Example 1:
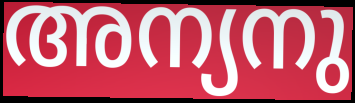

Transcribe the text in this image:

അന്യനു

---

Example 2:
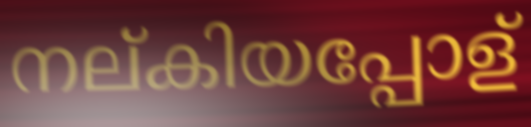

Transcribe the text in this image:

നല്കിയപ്പോള്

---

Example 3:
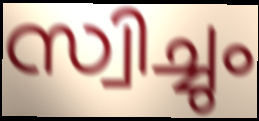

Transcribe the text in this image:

സ്വിച്ചും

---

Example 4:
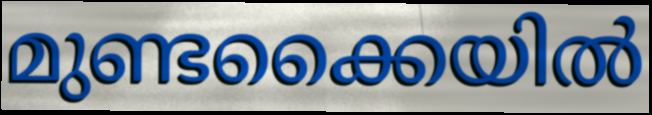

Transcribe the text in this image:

മുണ്ടക്കൈയിൽ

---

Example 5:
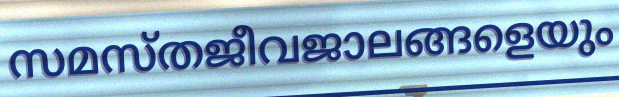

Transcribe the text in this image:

സമസ്തജീവജാലങ്ങളെയും